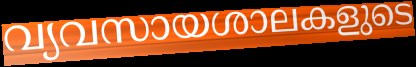
വ്യവസായശാലകളുടെ